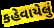
કહેવાયેલું